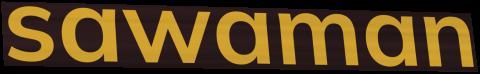
sawaman